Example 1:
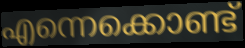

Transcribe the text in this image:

എന്നെക്കൊണ്ട്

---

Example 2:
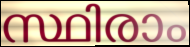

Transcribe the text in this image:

സ്ഥിരാം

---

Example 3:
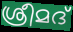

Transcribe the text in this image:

ശ്രീമദ്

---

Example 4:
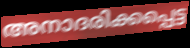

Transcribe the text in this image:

അനാദരിക്കപ്പെട്ട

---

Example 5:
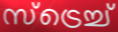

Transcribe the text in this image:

സ്ട്രെച്ച്